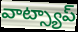
వాట్స్యాప్